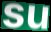
su